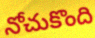
నోచుకొంది